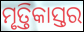
ମୃତ୍ତିକାସ୍ତର